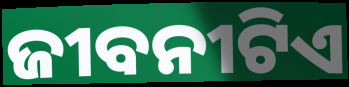
ଜୀବନୀଟିଏ